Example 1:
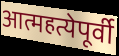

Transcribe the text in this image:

आत्महत्येपूर्वी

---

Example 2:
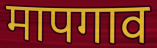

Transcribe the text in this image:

मापगाव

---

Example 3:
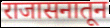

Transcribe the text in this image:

राजासनातून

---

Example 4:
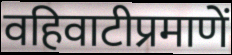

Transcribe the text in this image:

वहिवाटीप्रमाणें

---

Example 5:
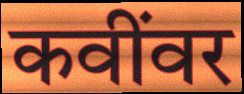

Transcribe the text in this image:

कवींवर